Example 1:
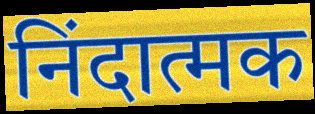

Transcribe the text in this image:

निंदात्मक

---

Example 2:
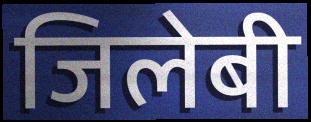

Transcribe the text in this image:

जिलेबी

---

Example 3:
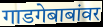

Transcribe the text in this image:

गाडगेबाबांवर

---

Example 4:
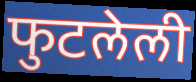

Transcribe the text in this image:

फुटलेली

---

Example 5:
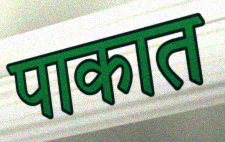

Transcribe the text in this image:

पाकात